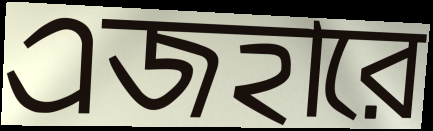
এজহারে